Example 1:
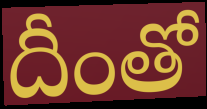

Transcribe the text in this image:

దీంతో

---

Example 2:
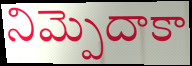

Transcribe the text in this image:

నిమ్పెదాకా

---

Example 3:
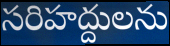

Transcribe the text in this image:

సరిహద్దులను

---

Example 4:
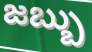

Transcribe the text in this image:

జబ్బు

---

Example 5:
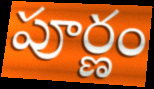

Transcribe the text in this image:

పూర్ణం